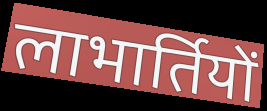
लाभार्तियों